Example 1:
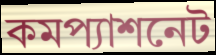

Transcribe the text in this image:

কমপ্যাশনেট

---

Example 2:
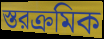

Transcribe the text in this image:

স্তরক্রমিক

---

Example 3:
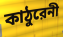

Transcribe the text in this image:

কাঠুরেনী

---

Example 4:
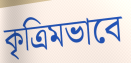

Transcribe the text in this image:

কৃত্রিমভাবে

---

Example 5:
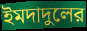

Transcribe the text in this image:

ইমদাদুলের